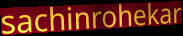
sachinrohekar